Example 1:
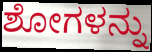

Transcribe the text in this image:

ಶೋಗಳನ್ನು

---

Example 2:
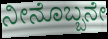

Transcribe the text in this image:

ನೀನೊಬ್ಬನೇ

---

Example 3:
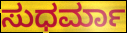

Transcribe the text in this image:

ಸುಧರ್ಮಾ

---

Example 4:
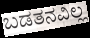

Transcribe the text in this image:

ಬಡತನವಿಲ್ಲ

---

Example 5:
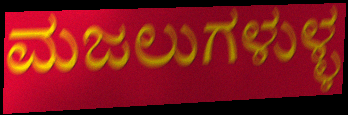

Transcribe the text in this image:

ಮಜಲುಗಳುಳ್ಳ